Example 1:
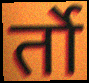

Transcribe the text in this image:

र्तो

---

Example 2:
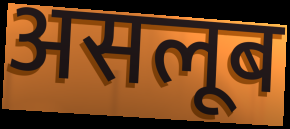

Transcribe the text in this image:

असलूब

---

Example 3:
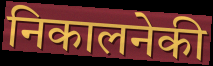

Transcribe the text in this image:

निकालनेकी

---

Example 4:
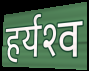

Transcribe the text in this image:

हर्यश्व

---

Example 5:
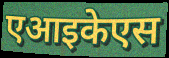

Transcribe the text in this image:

एआइकेएस